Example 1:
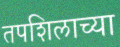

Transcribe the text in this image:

तपशिलाच्या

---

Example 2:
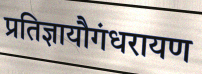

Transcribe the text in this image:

प्रतिज्ञायौगंधरायण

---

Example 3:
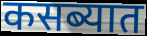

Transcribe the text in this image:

कसब्यात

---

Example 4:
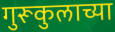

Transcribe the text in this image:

गुरूकुलाच्या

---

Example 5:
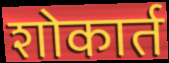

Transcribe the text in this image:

शोकार्त